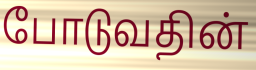
போடுவதின்